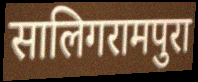
सालिगरामपुरा